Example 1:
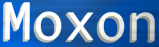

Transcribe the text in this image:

Moxon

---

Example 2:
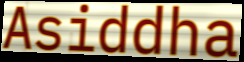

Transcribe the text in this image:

Asiddha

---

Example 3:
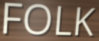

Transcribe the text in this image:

FOLK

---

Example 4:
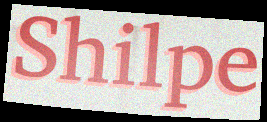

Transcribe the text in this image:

Shilpe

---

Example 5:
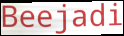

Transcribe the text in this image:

Beejadi